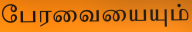
பேரவையையும்